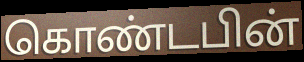
கொண்டபின்